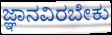
ಜ್ಞಾನವಿರಬೇಕು